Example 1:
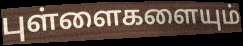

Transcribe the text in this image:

புள்ளைகளையும்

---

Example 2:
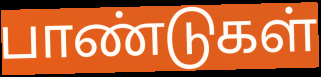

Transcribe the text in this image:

பாண்டுகள்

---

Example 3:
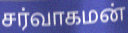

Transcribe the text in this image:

சர்வாகமன்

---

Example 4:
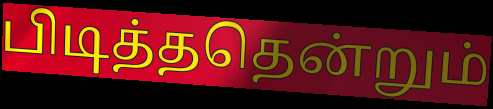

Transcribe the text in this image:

பிடித்ததென்றும்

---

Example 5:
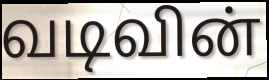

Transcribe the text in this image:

வடிவின்